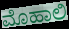
ಮೊಹಾಲಿ